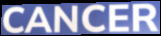
CANCER